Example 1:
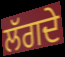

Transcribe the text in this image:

ਲੱਗਦੇ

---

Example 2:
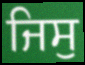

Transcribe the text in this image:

ਜਿਸੁ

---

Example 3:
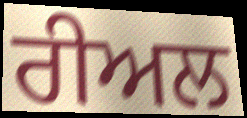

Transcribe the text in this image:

ਰੀਅਲ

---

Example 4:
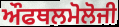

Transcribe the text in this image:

ਔਫਥਲਮੋਲੋਜੀ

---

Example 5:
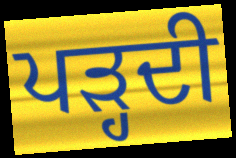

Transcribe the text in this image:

ਪੜ੍ਹਦੀ